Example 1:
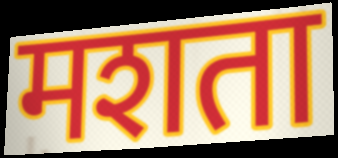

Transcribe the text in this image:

मशता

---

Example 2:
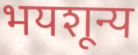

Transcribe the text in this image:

भयशून्य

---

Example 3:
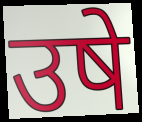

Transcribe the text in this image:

उषे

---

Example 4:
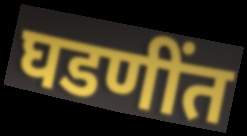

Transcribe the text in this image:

घडणींत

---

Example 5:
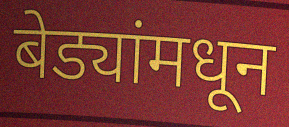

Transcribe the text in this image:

बेड्यांमधून